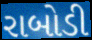
રાબોડી